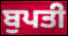
ਬੁਪਤੀ